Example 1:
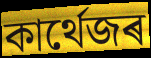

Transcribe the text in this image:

কাৰ্থেজৰ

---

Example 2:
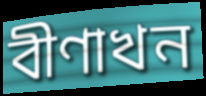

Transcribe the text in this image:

বীণাখন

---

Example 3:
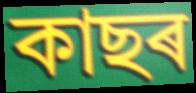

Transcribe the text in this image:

কাছৰ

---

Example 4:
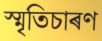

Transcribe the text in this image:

স্মৃতিচাৰণ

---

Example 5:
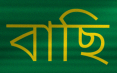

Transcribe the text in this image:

বাছি